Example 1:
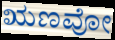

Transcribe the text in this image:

ಋಣವೋ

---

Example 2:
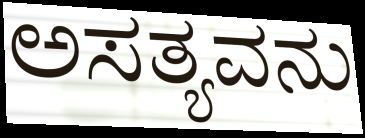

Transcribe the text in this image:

ಅಸತ್ಯವನು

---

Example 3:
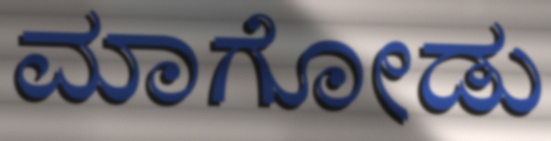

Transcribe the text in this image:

ಮಾಗೋಡು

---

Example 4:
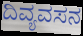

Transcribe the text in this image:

ದಿವ್ಯವಸನ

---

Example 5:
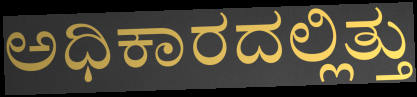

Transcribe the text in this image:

ಅಧಿಕಾರದಲ್ಲಿತ್ತು